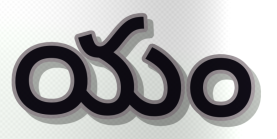
యం